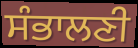
ਸੰਭਾਲਣੀ